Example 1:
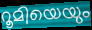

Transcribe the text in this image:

റൂമിയെയും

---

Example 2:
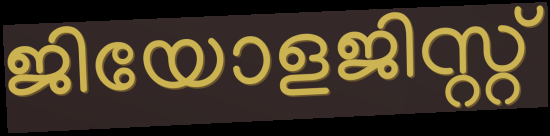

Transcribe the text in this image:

ജിയോളജിസ്റ്റ്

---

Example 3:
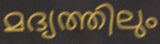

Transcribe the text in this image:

മദ്യത്തിലും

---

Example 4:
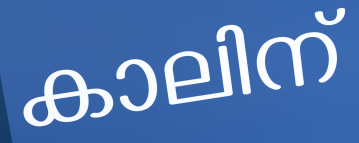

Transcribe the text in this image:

കാലിന്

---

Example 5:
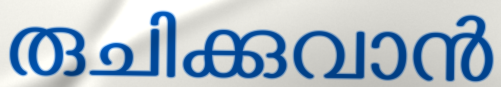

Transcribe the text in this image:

രുചിക്കുവാൻ